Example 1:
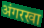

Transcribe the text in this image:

अंगरखा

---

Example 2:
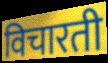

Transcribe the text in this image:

विचारती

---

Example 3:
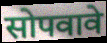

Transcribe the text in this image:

सोपवावे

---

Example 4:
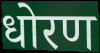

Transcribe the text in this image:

धोरण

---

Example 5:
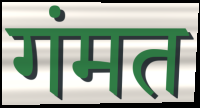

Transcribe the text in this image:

गंमत